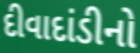
દીવાદાંડીનો